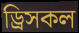
ড্রিসকল